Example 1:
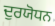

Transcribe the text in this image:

ਦੁਰਯੋਧਨ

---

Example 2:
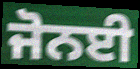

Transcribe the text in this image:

ਜੋਨਈ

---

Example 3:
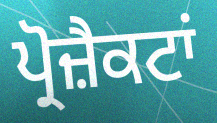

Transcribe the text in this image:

ਪ੍ਰੋਜ਼ੈਕਟਾਂ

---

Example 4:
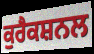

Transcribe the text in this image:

ਕੁਰੈਕਸ਼ਨਲ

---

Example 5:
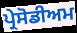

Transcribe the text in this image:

ਪ੍ਰੇਸੋਡੀਅਮ